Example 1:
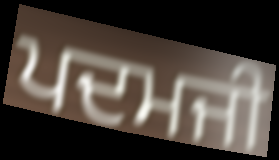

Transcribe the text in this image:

ਪਦਮਜੀ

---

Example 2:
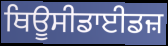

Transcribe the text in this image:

ਥਿਊਸੀਡਾਈਡਜ਼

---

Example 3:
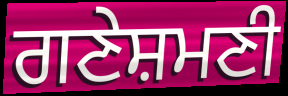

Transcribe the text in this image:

ਗਣੇਸ਼ਮਣੀ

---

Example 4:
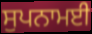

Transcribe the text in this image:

ਸੁਪਨਾਮਈ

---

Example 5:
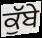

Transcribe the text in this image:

ਕੁੱਬੇ